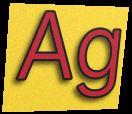
Ag